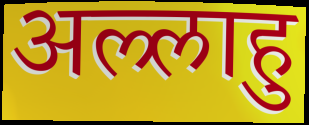
अल्लाहु